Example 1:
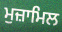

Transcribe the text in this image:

ਮੁਜ਼ਾਮਿਲ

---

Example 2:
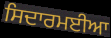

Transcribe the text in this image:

ਸਿਦਾਰਮਈਆ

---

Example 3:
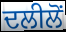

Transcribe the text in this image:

ਦਲੀਲੋਂ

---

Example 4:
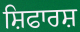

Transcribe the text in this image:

ਸ਼ਿਫਾਰਸ਼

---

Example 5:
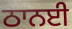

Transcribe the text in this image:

ਠਾਨਈ